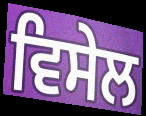
ਵਿਸੇਲ